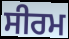
ਸੀਰਮ